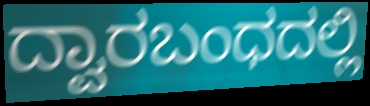
ದ್ವಾರಬಂಧದಲ್ಲಿ